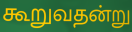
கூறுவதன்று